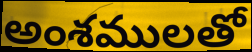
అంశములతో